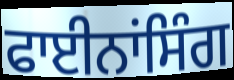
ਫਾਈਨਾਂਸਿੰਗ